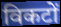
विकटों